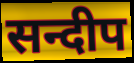
सन्दीप